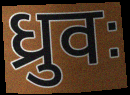
ध्रुवः